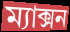
ম্যাক্সন